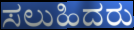
ಸಲುಹಿದರು